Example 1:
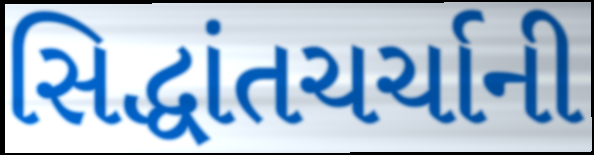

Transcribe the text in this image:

સિદ્ધાંતચર્ચાની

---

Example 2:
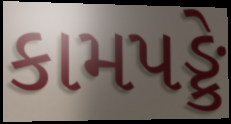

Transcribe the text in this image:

કામપઙ્કે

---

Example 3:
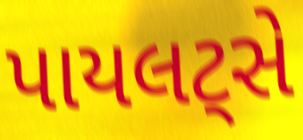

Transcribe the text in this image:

પાયલટ્સે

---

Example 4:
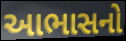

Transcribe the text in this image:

આભાસનો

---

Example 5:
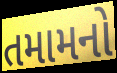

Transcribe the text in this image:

તમામનો